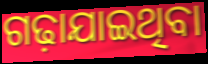
ଗଢ଼ାଯାଇଥିବା